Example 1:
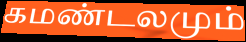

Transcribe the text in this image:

கமண்டலமும்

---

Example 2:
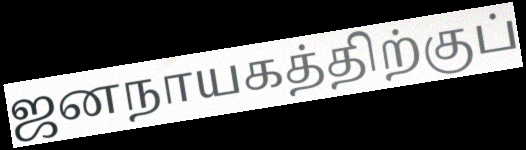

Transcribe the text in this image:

ஜனநாயகத்திற்குப்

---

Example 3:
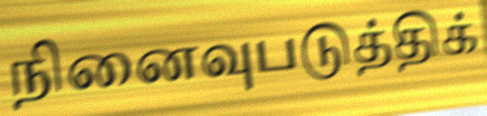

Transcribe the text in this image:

நினைவுபடுத்திக்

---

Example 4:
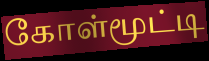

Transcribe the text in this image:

கோள்மூட்டி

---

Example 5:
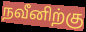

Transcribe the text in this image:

நவீனிற்கு